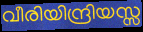
വീരിയിന്ദ്രിയസ്സ